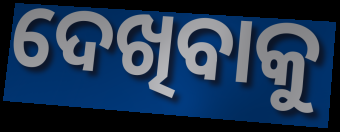
ଦେଖିବାକୁ